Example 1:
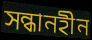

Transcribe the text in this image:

সন্ধানহীন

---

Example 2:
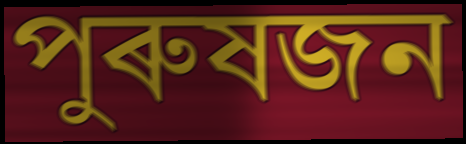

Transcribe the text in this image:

পুৰুষজন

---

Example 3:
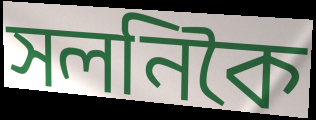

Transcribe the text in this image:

সলনিকৈ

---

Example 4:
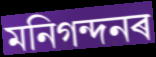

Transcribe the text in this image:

মনিগন্দনৰ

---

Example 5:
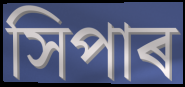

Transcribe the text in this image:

সিপাৰ